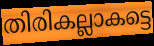
തിരികല്ലാകട്ടെ